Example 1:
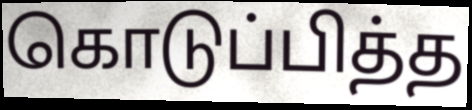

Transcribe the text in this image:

கொடுப்பித்த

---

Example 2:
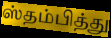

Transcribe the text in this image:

ஸ்தம்பித்து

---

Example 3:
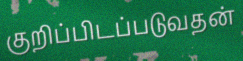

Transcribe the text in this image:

குறிப்பிடப்படுவதன்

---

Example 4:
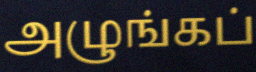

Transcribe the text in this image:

அழுங்கப்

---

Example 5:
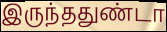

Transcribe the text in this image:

இருந்ததுண்டா